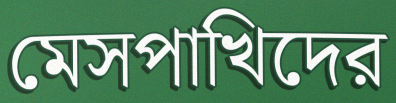
মেসপাখিদের